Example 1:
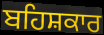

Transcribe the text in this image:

ਬਹਿਸ਼ਕਾਰ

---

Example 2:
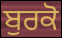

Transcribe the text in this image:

ਬੁਰਕੋ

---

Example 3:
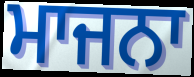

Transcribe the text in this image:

ਮਾਜਨਾ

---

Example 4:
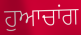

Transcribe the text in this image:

ਹੁਆਚਾਂਗ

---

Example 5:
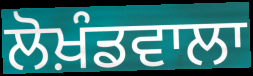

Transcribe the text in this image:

ਲੋਖ਼ੰਡਵਾਲਾ